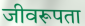
जीवरूपता